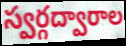
స్వర్గద్వారాల